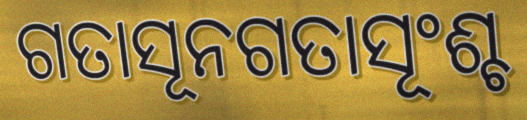
ଗତାସୂନଗତାସୂଂଶ୍ଚ